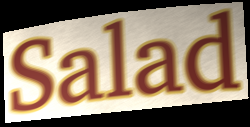
Salad